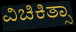
ವಿಚಿಕಿತ್ಸಾ